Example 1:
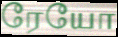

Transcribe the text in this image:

ரேயோ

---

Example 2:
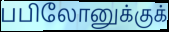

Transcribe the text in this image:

பபிலோனுக்குக்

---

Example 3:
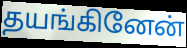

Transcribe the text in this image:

தயங்கினேன்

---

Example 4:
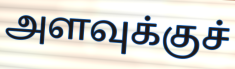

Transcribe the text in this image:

அளவுக்குச்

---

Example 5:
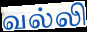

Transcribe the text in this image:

வல்லி